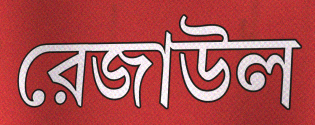
রেজাউল